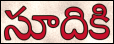
సూదికి